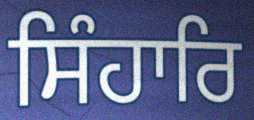
ਸਿੰਹਾਰਿ